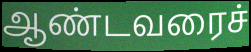
ஆண்டவரைச்